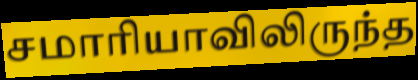
சமாரியாவிலிருந்த